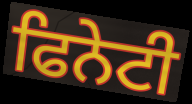
ਫਿਨੇਟੀ